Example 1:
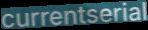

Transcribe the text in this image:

currentserial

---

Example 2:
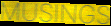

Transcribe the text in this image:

MUSINGS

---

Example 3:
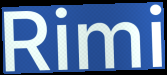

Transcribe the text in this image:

Rimi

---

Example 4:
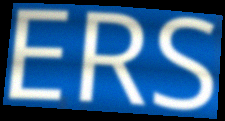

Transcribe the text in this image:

ERS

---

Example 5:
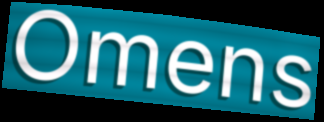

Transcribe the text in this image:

Omens